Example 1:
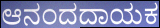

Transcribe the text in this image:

ಆನಂದದಾಯಕ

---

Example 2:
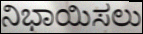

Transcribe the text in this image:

ನಿಭಾಯಿಸಲು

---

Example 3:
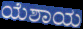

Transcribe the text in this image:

ಯೆಶಾಯ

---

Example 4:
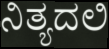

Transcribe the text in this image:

ನಿತ್ಯದಲಿ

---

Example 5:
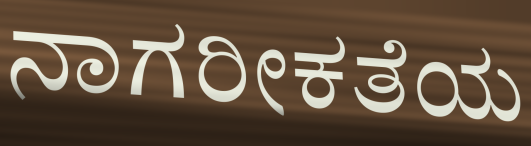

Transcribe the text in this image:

ನಾಗರೀಕತೆಯ